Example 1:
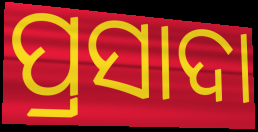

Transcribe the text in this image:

ପ୍ରସାଦା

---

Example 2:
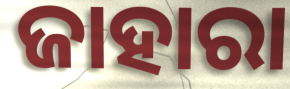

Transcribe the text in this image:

ଜାହାରା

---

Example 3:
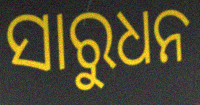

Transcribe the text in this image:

ସାରୁଧନ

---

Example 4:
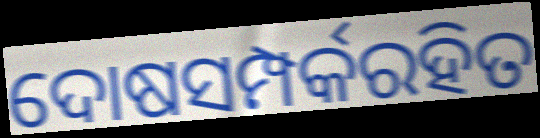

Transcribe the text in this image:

ଦୋଷସମ୍ପର୍କରହିତ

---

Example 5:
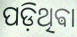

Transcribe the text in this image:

ପଡ଼ିଥିଵା